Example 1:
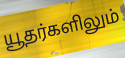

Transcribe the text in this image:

யூதர்களிலும்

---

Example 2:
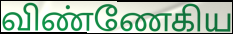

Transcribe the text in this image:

விண்ணேகிய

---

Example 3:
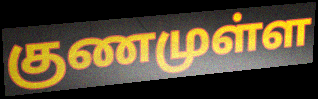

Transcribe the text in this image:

குணமுள்ள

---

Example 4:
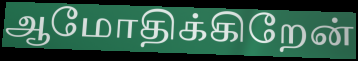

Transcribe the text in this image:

ஆமோதிக்கிறேன்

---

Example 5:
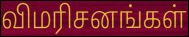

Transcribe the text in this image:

விமரிசனங்கள்